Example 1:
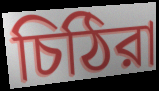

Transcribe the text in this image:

চিঠিরা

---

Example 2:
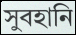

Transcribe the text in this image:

সুবহানি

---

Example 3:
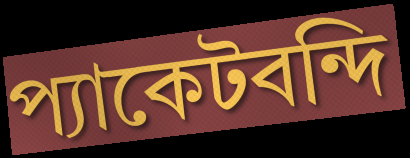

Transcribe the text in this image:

প্যাকেটবন্দি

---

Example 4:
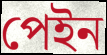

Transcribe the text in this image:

পেইন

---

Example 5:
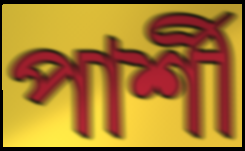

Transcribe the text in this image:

পার্শী